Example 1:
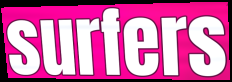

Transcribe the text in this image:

surfers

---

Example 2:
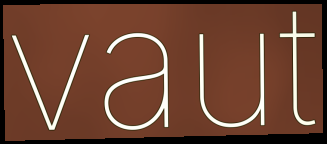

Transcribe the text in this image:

vaut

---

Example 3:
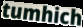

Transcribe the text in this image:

tumhich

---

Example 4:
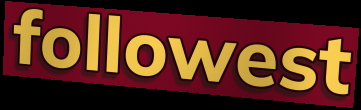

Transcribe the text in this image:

followest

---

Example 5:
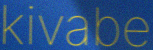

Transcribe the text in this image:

kivabe